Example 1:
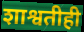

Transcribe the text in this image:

शाश्वतीही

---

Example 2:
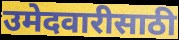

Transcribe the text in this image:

उमेदवारीसाठी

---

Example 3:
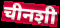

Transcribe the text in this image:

चीनशी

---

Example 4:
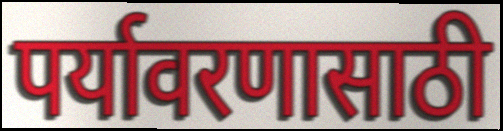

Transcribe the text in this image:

पर्यावरणासाठी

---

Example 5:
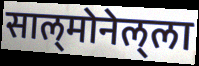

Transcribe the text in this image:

साल्मोनेल्ला